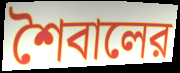
শৈবালের